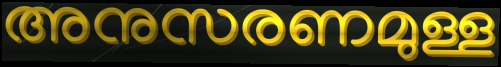
അനുസരണമുള്ള